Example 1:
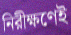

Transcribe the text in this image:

নিরীক্ষণেই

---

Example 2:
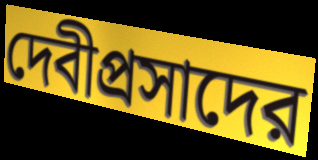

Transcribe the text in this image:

দেবীপ্রসাদের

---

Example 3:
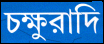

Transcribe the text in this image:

চক্ষুরাদি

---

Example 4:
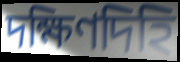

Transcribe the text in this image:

দক্ষিণদিহি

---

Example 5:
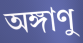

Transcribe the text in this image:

অঙ্গাণু